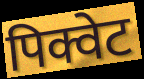
पिक्वेट